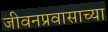
जीवनप्रवासाच्या